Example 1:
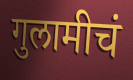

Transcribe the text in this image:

गुलामीचं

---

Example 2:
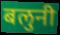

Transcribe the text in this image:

बलुनी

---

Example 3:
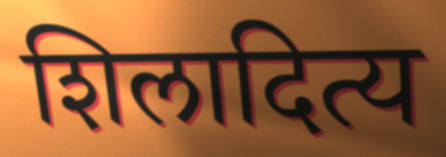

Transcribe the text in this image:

शिलादित्य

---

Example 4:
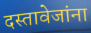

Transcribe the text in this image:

दस्तावेजांना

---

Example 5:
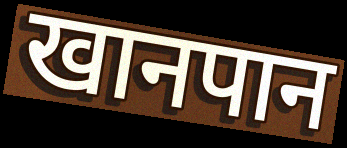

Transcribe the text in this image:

खानपान